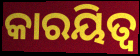
କାରୟିତ୍ୱ